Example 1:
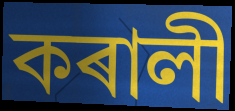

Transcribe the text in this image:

কৰালী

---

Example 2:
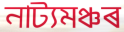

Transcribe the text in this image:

নাট্যমঞ্চৰ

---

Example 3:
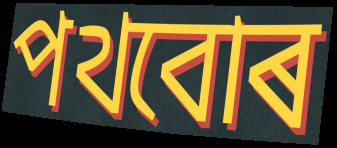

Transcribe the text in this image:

পথবোৰ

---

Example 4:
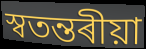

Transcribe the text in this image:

স্বতন্তৰীয়া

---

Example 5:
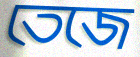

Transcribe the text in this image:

তেজে